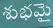
శుభమై